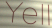
Yell